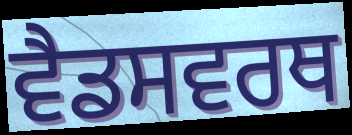
ਵੈਡਸਵਰਥ